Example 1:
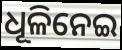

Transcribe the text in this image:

ଧୂଳିନେଇ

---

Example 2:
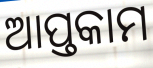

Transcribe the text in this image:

ଆପ୍ତକାମ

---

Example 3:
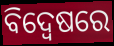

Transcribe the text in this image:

ବିଦ୍ଵେଷରେ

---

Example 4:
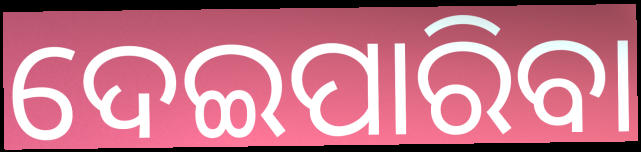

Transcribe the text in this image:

ଦେଇପାରିବା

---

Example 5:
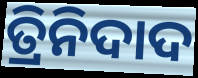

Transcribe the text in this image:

ତ୍ରିନିଦାଦ